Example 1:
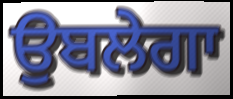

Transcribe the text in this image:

ਉਬਲੇਗਾ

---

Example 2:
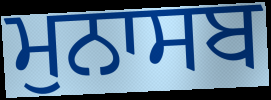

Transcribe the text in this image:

ਮੁਨਾਸਬ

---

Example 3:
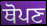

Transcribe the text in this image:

ਥੋਪਣ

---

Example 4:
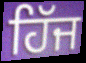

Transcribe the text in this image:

ਹਿੱਜ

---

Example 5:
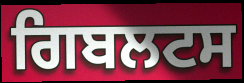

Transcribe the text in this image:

ਗਿਬਲਟਸ